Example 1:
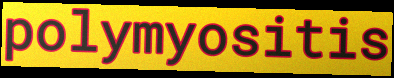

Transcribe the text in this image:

polymyositis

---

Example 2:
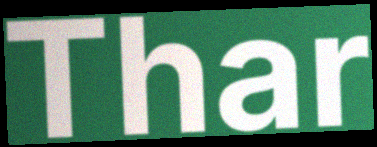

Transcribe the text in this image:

Thar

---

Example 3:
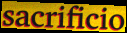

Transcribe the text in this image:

sacrificio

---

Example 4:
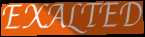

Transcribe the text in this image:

EXALTED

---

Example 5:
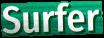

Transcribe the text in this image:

Surfer